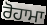
ਰੋਹਾਮਾ